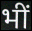
भीं